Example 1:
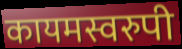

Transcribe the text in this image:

कायमस्वरुपी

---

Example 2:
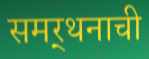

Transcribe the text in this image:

समर्थनाची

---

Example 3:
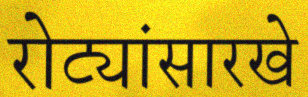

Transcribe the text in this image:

रोट्यांसारखे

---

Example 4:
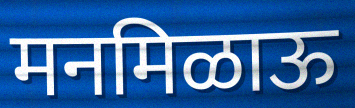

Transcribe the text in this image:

मनमिळाऊ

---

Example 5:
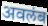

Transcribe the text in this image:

अवलंब